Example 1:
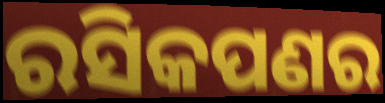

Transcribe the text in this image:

ରସିକପଣର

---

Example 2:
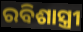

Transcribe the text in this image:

ରବିଶାସ୍ତ୍ରୀ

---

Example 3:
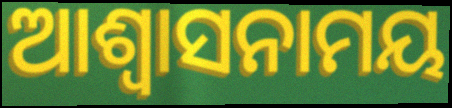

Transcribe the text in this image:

ଆଶ୍ୱାସନାମୟ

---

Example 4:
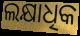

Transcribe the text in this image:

ଲକ୍ଷାଧିକ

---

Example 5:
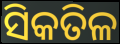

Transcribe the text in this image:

ସିକତିଳ